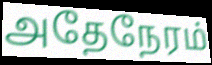
அதேநேரம்